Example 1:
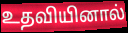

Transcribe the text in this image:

உதவியினால்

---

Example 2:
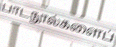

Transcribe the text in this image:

பாடநூல்களைப்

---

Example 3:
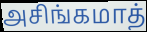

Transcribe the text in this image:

அசிங்கமாத்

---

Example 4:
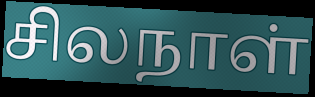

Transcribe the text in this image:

சிலநாள்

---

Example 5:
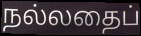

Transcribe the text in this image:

நல்லதைப்